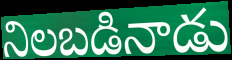
నిలబడినాడు